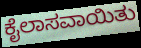
ಕೈಲಾಸವಾಯಿತು